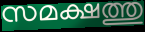
സമക്ഷത്തു